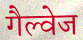
गैल्वेज